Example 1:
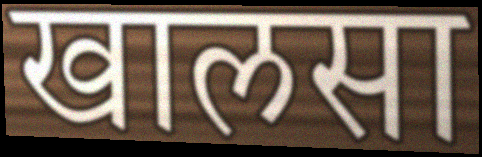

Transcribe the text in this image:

खालसा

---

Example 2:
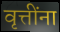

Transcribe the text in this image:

वृत्तींना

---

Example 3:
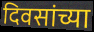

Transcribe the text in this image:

दिवसांच्या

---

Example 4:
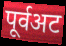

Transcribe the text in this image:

पूर्वअट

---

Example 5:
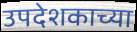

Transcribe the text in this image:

उपदेशकाच्या